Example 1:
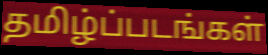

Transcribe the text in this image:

தமிழ்ப்படங்கள்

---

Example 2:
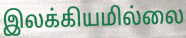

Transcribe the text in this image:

இலக்கியமில்லை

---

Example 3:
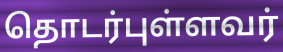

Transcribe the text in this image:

தொடர்புள்ளவர்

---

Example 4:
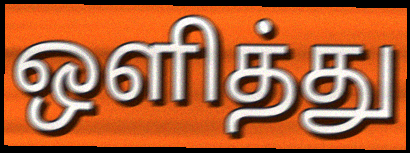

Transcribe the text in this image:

ஒளித்து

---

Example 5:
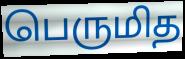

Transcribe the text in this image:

பெருமித